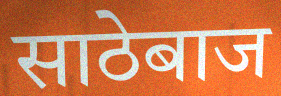
साठेबाज